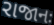
રાજાનઃ